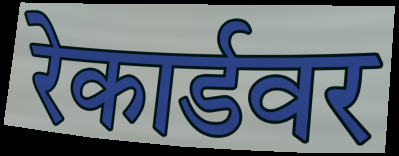
रेकार्डवर